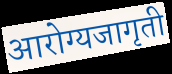
आरोग्यजागृती